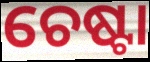
ଚେଷ୍ଟା